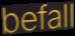
befall